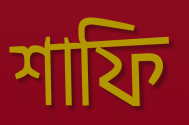
শাফি